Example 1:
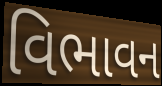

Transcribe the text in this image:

વિભાવન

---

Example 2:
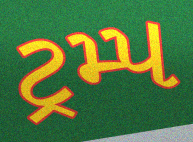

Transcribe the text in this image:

ટ્રમ્પ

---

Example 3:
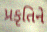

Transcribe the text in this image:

પ્રકૃતિને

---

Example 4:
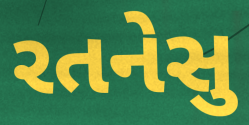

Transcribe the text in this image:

રતનેસુ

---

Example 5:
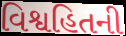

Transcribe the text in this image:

વિશ્વહિતની